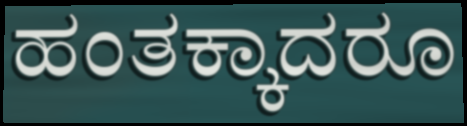
ಹಂತಕ್ಕಾದರೂ